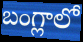
బంగ్లాలో